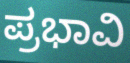
ಪ್ರಭಾವಿ